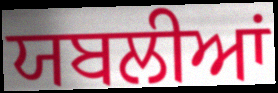
ਯਬਲੀਆਂ